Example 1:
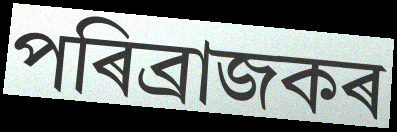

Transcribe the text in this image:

পৰিব্ৰাজকৰ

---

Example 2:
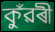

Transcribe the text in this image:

কুঁৱৰী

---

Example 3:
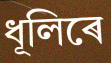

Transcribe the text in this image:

ধূলিৰে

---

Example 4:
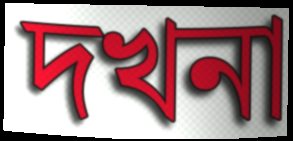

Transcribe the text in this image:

দখনা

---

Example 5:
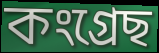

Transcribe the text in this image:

কংগ্ৰেছ